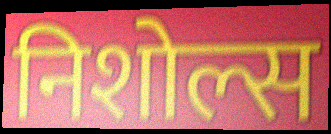
निशोल्स